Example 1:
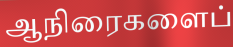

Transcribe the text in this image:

ஆநிரைகளைப்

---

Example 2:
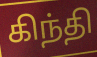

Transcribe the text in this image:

கிந்தி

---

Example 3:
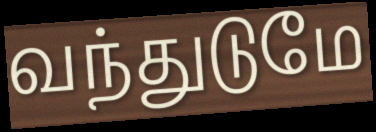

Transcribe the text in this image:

வந்துடுமே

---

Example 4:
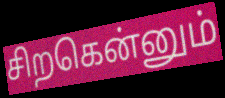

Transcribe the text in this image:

சிறகென்னும்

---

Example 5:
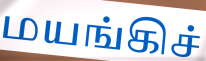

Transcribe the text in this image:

மயங்கிச்